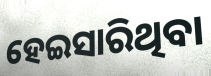
ହେଇସାରିଥିବା